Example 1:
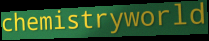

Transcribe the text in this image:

chemistryworld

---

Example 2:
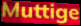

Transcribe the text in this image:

Muttige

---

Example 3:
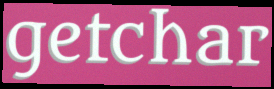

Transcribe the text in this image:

getchar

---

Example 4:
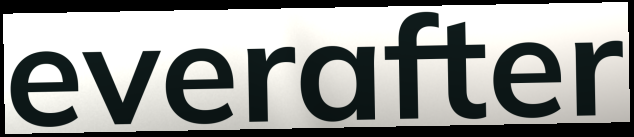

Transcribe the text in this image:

everafter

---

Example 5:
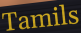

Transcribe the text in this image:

Tamils